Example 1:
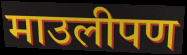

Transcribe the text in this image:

माउलीपण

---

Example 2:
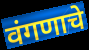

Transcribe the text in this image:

वंगणाचे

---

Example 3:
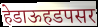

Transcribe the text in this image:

हेडाऊहडपसर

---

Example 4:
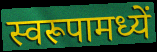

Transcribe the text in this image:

स्वरूपामध्यें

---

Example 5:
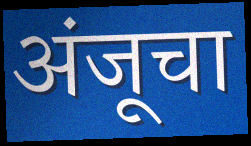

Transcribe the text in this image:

अंजूचा